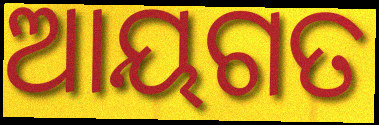
ଆୟଗତ